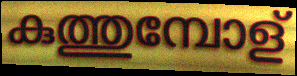
കുത്തുമ്പോള്